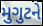
મુગુટને